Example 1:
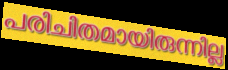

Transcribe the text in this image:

പരിചിതമായിരുന്നില്ല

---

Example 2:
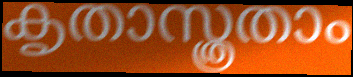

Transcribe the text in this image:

കൃതാസ്ത്രതാം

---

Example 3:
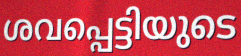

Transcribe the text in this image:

ശവപ്പെട്ടിയുടെ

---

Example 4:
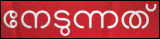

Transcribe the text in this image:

നേടുന്നത്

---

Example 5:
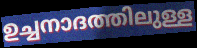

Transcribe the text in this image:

ഉച്ചനാദത്തിലുള്ള